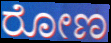
ರೋಣ